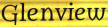
Glenview